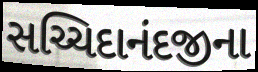
સચ્ચિદાનંદજીના